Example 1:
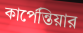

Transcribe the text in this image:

কার্পেন্তিয়ার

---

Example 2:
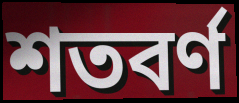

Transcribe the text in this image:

শতবর্ণ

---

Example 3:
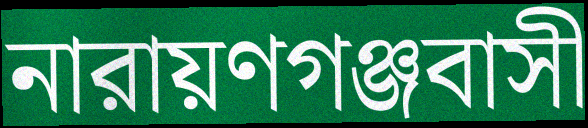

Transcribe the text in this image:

নারায়ণগঞ্জবাসী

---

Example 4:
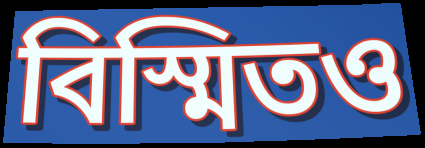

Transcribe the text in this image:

বিস্মিতও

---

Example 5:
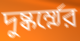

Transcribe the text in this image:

দুষ্কর্ম্মের